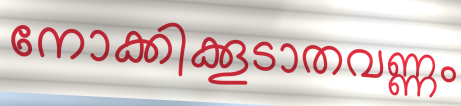
നോക്കിക്കൂടാതവണ്ണം